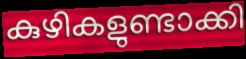
കുഴികളുണ്ടാക്കി